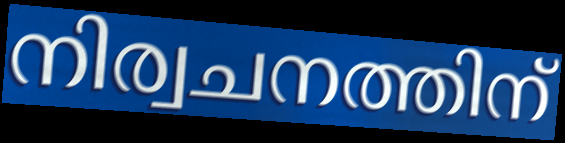
നിര്വചനത്തിന്